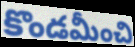
కొండమీంచి